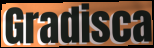
Gradisca